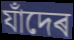
যাঁদেৰ